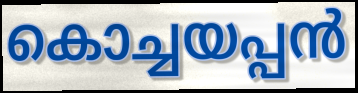
കൊച്ചയപ്പൻ